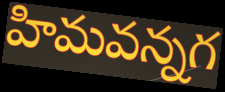
హిమవన్నగ